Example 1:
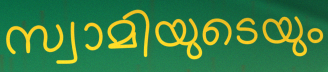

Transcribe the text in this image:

സ്വാമിയുടെയും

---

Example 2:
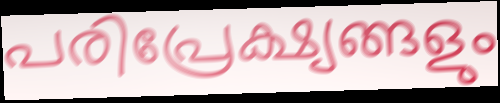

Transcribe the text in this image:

പരിപ്രേക്ഷ്യങ്ങളും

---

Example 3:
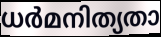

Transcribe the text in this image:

ധർമനിത്യതാ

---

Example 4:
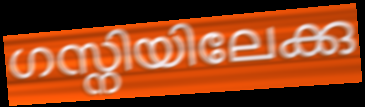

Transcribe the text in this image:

ഗസ്നിയിലേക്കു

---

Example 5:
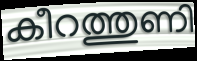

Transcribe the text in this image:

കീറത്തുണി